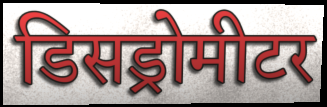
डिसड्रोमीटर